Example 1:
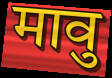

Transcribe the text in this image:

मावु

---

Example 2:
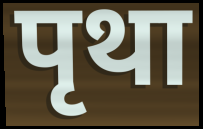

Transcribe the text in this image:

पृथा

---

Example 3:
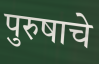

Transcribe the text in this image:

पुरुषाचे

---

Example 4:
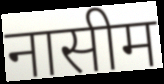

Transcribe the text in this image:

नासीम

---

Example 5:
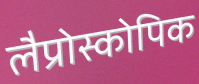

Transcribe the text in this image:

लैप्रोस्कोपिक